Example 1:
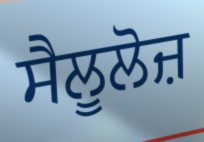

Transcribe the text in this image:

ਸੈਲੂਲੋਜ਼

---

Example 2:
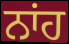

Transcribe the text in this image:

ਨਾਂਹ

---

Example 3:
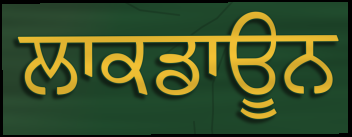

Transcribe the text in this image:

ਲਾਕਡਾਊਨ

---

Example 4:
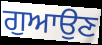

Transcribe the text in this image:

ਗੁਆਉਣ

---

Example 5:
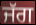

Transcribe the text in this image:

ਜੱਗ